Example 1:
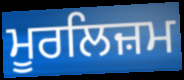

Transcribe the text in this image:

ਮੂਰਲਿਜ਼ਮ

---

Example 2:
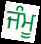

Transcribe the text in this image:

ਜੰਮੂ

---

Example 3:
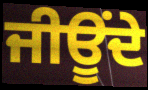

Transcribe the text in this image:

ਜੀਊਂਦੇ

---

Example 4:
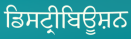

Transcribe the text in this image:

ਡਿਸਟ੍ਰੀਬਿਊਸ਼ਨ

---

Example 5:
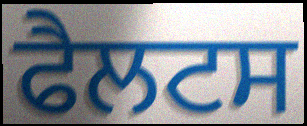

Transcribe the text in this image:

ਫੈਲਟਸ